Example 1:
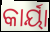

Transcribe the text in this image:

କାର୍ୟା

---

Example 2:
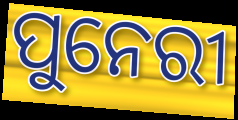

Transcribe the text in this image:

ପୁନେରୀ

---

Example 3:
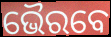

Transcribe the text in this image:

ଭୈରବେ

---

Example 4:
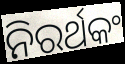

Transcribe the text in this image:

ନିରର୍ଥକଂ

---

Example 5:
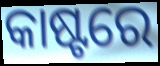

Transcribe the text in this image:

କାଷ୍ଟରେ